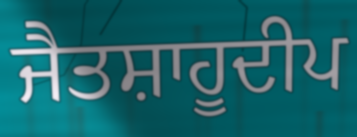
ਜੈਤਸ਼ਾਹੂਦੀਪ